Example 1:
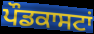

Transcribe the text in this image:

ਪੌਡਕਾਸਟਾਂ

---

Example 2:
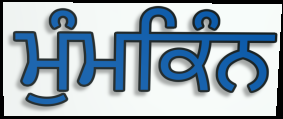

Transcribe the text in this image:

ਮੁੰਮਕਿੰਨ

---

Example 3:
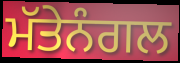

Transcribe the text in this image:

ਮੱਤੇਨੰਗਲ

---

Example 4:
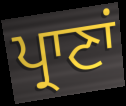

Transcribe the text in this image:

ਪ੍ਰਾਣਾਂ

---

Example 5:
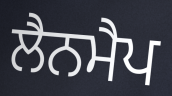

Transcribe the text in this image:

ਲੈਨਮੈਪ